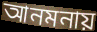
আনমনায়